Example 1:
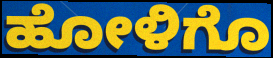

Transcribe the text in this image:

ಹೋಳಿಗೊ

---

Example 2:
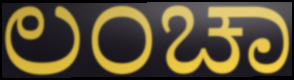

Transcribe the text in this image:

ಲಂಚಾ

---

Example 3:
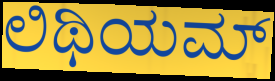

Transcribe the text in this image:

ಲಿಥಿಯಮ್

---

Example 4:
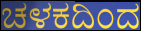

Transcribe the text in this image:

ಚಳಕದಿಂದ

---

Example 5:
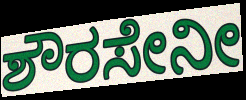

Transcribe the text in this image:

ಶೌರಸೇನೀ